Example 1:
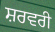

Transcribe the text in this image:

ਸ਼ਰਵਰੀ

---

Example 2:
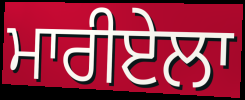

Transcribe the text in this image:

ਮਾਰੀਏਲਾ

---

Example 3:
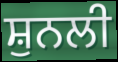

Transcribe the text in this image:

ਸ਼ੁਨਲੀ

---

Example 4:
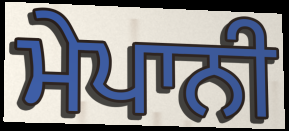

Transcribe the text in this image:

ਮੇਪਾਨੀ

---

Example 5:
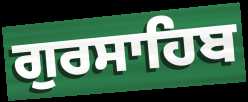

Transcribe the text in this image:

ਗੁਰਸਾਹਿਬ